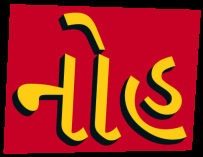
નોહ